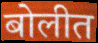
बोलीत